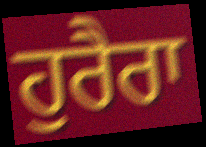
ਹੁਰੈਰਾ